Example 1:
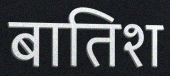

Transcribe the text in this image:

बातिश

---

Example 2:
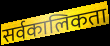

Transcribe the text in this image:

सर्वकालिकता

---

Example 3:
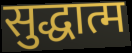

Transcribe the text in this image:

सुद्धात्म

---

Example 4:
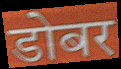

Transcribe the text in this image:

डोबर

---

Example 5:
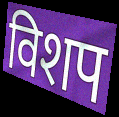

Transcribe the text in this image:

विशप